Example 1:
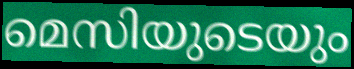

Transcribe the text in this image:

മെസിയുടെയും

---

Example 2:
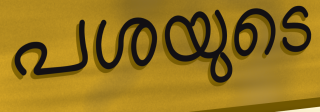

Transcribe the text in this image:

പശയുടെ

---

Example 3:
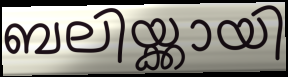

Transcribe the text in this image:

ബലിയ്ക്കായി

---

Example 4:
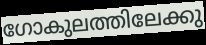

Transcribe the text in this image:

ഗോകുലത്തിലേക്കു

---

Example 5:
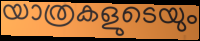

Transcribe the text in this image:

യാത്രകളുടെയും